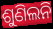
ଶୁଣିଲନି